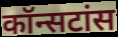
कॉन्सटांस